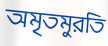
অমৃতমুরতি